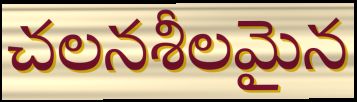
చలనశీలమైన